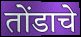
तोंडाचे